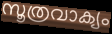
സൂത്രവാക്യം